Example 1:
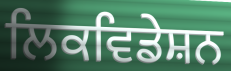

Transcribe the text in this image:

ਲਿਕਵਿਡੇਸ਼ਨ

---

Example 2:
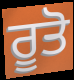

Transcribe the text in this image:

ਰੂਤੋ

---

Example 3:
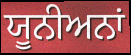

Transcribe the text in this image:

ਯੂਨੀਅਨਾਂ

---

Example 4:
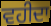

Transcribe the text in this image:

ਵਹੀਦਾ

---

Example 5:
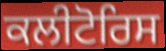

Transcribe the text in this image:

ਕਲੀਟੋਰਿਸ